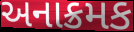
અનાક્રમક